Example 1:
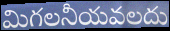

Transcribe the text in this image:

మిగలనీయవలదు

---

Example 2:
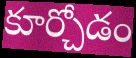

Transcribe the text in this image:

కూర్చోడం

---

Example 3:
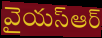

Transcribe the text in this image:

వైయస్ఆర్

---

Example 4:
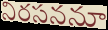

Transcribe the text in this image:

నిరసననూ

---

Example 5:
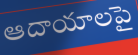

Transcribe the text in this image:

ఆదాయాలపై